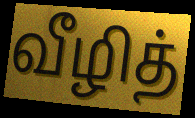
வீழித்